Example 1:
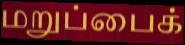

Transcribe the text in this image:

மறுப்பைக்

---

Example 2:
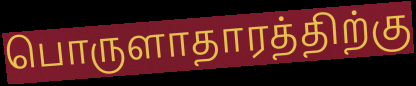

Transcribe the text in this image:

பொருளாதாரத்திற்கு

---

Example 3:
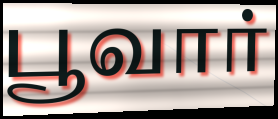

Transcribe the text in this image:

பூவார்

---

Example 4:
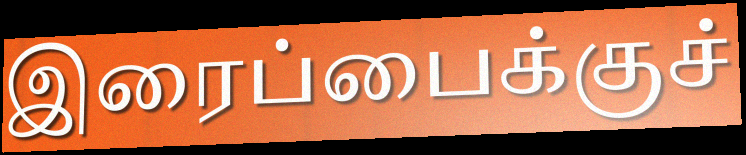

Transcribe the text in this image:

இரைப்பைக்குச்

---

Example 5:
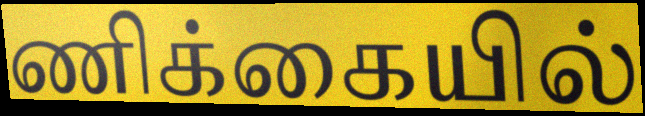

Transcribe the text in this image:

ணிக்கையில்